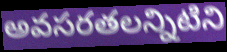
అవసరతలన్నిటిని